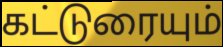
கட்டுரையும்